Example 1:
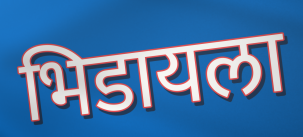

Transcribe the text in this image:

भिडायला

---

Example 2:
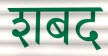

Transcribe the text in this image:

शबद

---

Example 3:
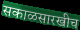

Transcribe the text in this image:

सकाळसारखीच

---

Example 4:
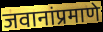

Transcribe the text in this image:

जवानांप्रमाणे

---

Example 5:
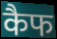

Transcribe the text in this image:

कैफ